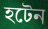
হটেন